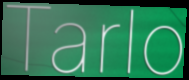
Tarlo